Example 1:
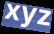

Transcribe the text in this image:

xyz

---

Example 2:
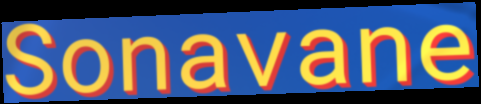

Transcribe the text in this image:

Sonavane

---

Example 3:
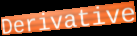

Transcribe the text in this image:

Derivative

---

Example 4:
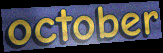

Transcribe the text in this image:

october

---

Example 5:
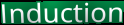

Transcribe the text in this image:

Induction